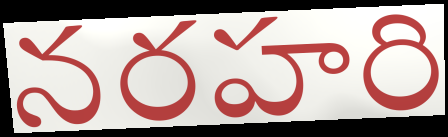
నరహరి